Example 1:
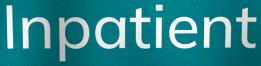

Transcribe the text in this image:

Inpatient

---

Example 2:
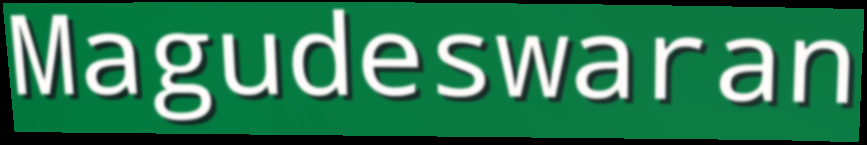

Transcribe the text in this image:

Magudeswaran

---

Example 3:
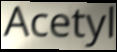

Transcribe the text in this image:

Acetyl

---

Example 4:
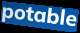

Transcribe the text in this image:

potable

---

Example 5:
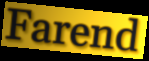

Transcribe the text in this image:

Farend